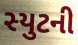
સ્યુટની